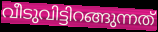
വീടുവിട്ടിറങ്ങുന്നത്